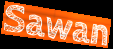
Sawan